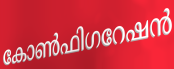
കോൺഫിഗറേഷൻ